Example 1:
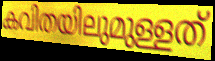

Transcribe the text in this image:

കവിതയിലുമുള്ളത്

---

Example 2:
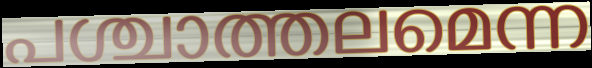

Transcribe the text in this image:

പശ്ചാത്തലമെന്ന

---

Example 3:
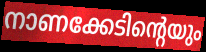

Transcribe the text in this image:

നാണക്കേടിന്റെയും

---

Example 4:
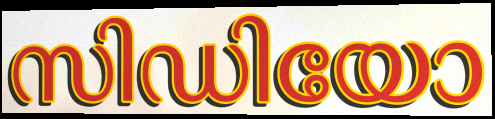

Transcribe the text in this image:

സിഡിയോ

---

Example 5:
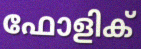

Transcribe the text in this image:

ഫോളിക്